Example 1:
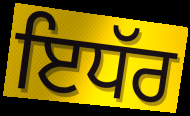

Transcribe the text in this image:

ਇਧੱਰ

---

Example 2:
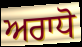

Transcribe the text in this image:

ਅਰਾਧੋ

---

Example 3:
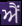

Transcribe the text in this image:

ਐਂ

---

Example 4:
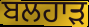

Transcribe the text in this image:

ਬਲਹਾੜ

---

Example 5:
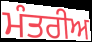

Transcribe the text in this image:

ਮੰਤਰੀਅ